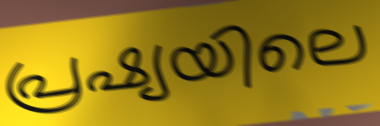
പ്രഷ്യയിലെ